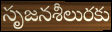
సృజనశీలురకు